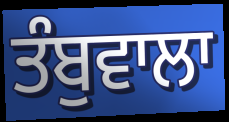
ਤੰਬੁਵਾਲਾ